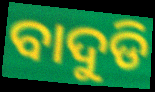
ବାଦୁଡି